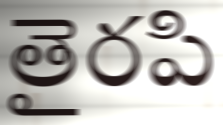
తైరపి